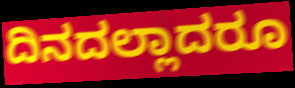
ದಿನದಲ್ಲಾದರೂ